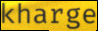
kharge